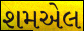
શમએલ